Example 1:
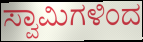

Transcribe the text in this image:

ಸ್ವಾಮಿಗಳಿಂದ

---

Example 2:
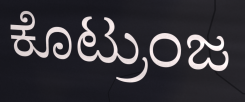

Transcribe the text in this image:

ಕೊಟ್ರುಂಜ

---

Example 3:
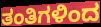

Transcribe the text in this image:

ತಂತಿಗಳಿಂದ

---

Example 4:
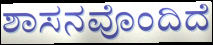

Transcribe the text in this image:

ಶಾಸನವೊಂದಿದೆ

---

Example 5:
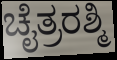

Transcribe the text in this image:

ಚೈತ್ರರಶ್ಮಿ